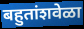
बहुतांशवेळा